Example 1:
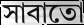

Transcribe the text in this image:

সাবাতো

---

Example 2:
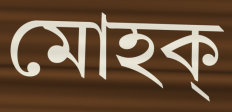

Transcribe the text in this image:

মোহক্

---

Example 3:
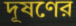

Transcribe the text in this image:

দূষণের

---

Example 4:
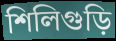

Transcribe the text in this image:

শিলিগুড়ি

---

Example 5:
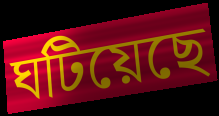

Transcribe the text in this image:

ঘটিয়েছে